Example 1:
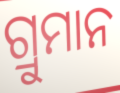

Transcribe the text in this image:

ଗ୍ରୁମାନ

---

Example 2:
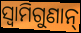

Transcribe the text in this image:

ସ୍ୱାମିଗୁଣାନ୍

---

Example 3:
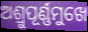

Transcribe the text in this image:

ଅଶ୍ରୁପୂର୍ଣ୍ଣମୁଖେ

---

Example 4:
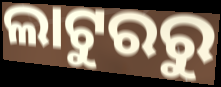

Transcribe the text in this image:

ଲାଟୁରରୁ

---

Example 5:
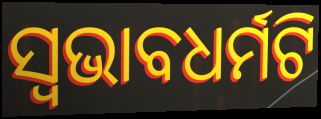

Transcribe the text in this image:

ସ୍ଵଭାବଧର୍ମଟି